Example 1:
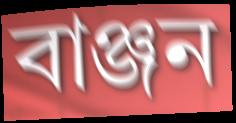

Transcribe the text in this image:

বাঞ্জন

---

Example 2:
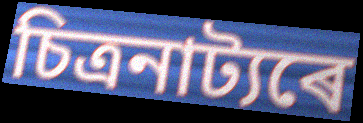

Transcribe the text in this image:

চিত্ৰনাট্যৰে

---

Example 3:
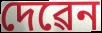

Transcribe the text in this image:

দেৱেন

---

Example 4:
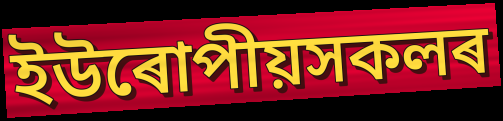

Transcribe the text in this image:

ইউৰোপীয়সকলৰ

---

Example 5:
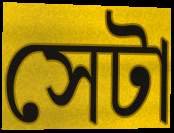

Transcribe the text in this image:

সেটা